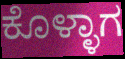
ಕೊಳ್ಳಾಗ